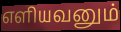
எளியவனும்